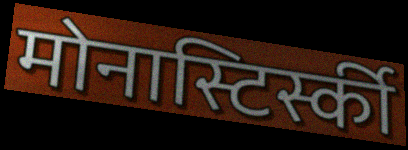
मोनास्टिर्स्की